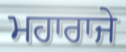
ਮਹਾਰਾਜੇ